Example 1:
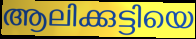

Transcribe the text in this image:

ആലിക്കുട്ടിയെ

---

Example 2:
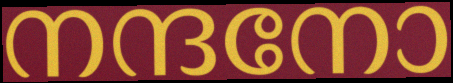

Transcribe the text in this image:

നന്ദനോ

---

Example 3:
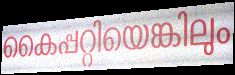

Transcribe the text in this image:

കൈപ്പറ്റിയെങ്കിലും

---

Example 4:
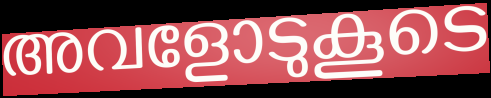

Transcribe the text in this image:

അവളോടുകൂടെ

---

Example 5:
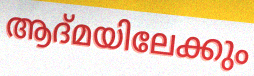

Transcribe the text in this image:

ആദ്മയിലേക്കും